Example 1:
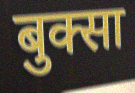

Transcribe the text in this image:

बुक्सा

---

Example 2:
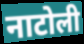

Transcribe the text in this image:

नाटोली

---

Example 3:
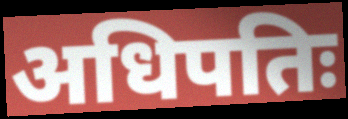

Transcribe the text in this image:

अधिपतिः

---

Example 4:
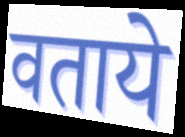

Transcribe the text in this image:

वताये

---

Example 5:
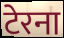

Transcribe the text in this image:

टेरना